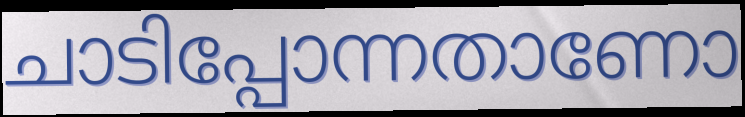
ചാടിപ്പോന്നതാണോ